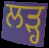
ਲੜ੍ਹ